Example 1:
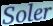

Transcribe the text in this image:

Soler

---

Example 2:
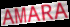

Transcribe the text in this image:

AMARA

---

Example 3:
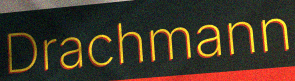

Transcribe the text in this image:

Drachmann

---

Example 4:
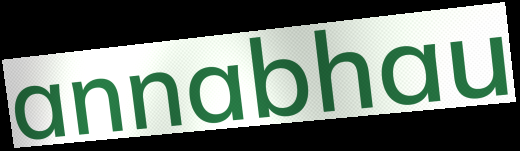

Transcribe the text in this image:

annabhau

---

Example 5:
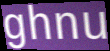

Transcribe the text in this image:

ghnu